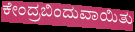
ಕೇಂದ್ರಬಿಂದುವಾಯಿತು